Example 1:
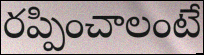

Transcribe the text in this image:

రప్పించాలంటే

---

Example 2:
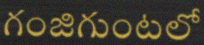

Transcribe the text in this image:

గంజిగుంటలో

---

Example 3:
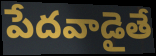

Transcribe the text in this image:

పేదవాడైతే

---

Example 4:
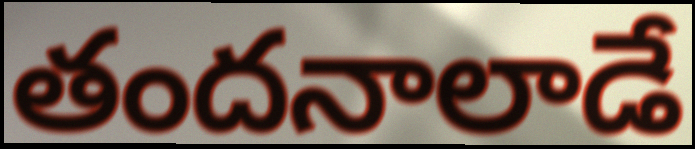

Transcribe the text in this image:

తందనాలాడే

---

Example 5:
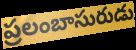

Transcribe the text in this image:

ప్రలంబాసురుడు